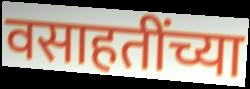
वसाहतींच्या